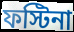
ফস্টিনা